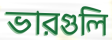
ভারগুলি